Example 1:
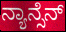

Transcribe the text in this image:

ನ್ಯಾನ್ಸೆನ್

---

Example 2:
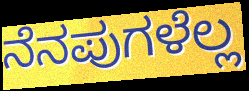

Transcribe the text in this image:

ನೆನಪುಗಳೆಲ್ಲ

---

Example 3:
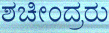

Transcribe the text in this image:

ಶಚೀಂದ್ರರು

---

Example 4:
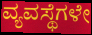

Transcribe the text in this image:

ವ್ಯವಸ್ಥೆಗಳೇ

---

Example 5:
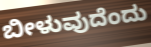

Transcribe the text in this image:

ಬೀಳುವುದೆಂದು